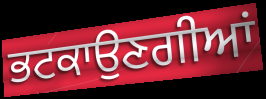
ਭਟਕਾਉਣਗੀਆਂ